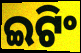
ଇଟିଂ